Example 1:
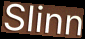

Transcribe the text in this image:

Slinn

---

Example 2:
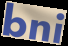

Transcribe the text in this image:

bni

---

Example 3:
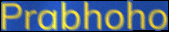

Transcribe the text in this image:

Prabhoho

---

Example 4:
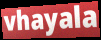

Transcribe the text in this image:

vhayala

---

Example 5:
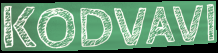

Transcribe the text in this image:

KODVAVI